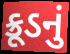
ક્રૂડનું